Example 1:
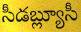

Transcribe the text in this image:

సీడబ్ల్యూసీ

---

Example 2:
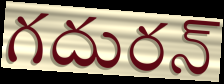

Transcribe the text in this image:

గదురన్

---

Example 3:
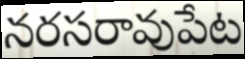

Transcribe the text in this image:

నరసరావుపేట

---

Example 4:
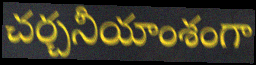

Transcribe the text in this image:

చర్చనీయాంశంగా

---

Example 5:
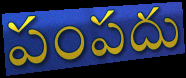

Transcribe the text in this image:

పంపదు